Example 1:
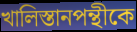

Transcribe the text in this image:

খালিস্তানপন্থীকে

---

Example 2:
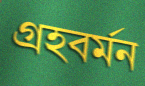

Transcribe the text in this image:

গ্রহবর্মন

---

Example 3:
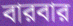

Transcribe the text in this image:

বারবার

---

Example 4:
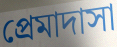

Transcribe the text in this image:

প্রেমাদাসা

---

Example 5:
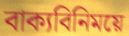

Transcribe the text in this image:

বাক্যবিনিময়ে